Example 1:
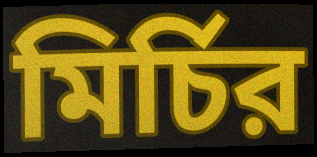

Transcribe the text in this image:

মির্চির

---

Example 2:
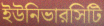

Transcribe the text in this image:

ইউনিভারসিটি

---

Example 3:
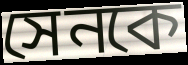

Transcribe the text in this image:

সেনকে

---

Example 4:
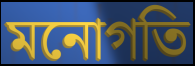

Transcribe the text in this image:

মনোগতি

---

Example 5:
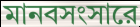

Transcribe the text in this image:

মানবসংসারে